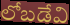
లోబడేవి